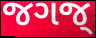
જગજ્